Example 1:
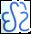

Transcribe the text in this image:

ઈટે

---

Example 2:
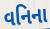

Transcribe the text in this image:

વનિના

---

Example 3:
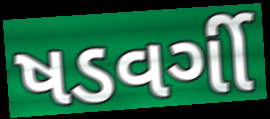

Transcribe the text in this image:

ષડવર્ગી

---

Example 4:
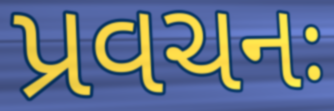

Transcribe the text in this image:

પ્રવચનઃ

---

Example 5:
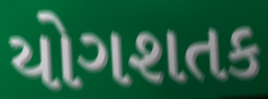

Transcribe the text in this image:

યોગશતક